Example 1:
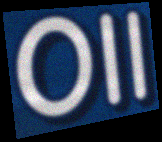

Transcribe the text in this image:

Oll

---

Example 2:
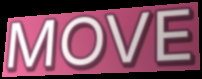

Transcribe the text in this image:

MOVE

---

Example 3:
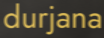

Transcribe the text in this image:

durjana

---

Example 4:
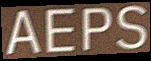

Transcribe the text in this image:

AEPS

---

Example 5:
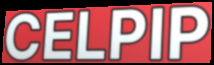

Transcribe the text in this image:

CELPIP